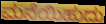
ಮನೆಯಿಹುದು